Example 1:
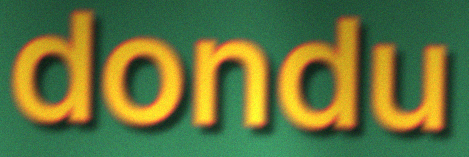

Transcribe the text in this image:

dondu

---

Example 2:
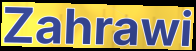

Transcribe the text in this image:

Zahrawi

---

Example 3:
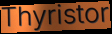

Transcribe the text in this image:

Thyristor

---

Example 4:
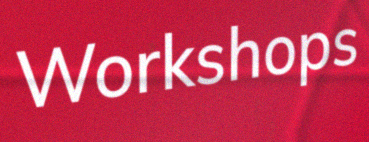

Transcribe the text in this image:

Workshops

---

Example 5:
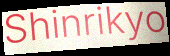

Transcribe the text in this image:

Shinrikyo